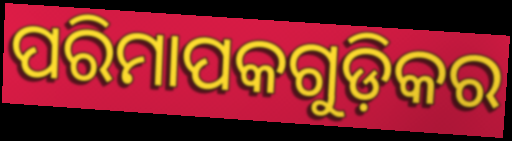
ପରିମାପକଗୁଡ଼ିକର